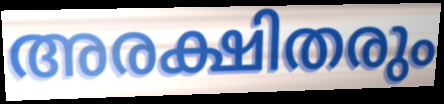
അരക്ഷിതരും